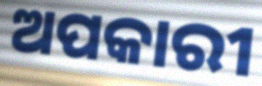
ଅପକାରୀ